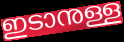
ഇടാനുള്ള